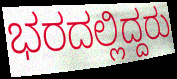
ಭರದಲ್ಲಿದ್ದರು